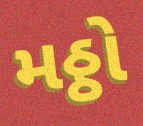
મઠ્ઠો